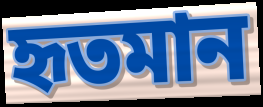
হৃতমান